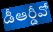
డీఆర్డీవో